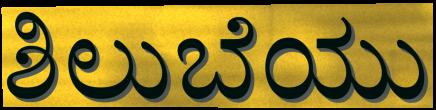
ಶಿಲುಬೆಯು